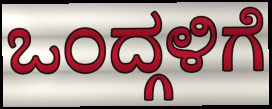
ಒಂದ್ಗಳಿಗೆ